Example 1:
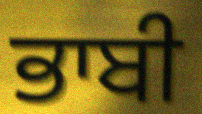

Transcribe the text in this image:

ਭਾਬੀ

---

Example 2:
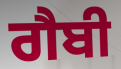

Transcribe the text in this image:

ਗੈਬੀ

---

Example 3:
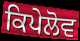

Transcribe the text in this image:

ਕਿਪੇਲੋਵ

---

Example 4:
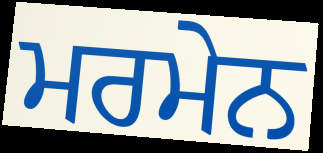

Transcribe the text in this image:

ਮਰਮੇਨ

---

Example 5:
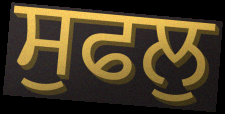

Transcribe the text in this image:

ਸੁਫਲੁ